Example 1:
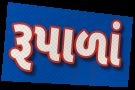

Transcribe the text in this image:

રૂપાળાં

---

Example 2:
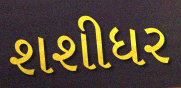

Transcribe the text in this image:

શશીધર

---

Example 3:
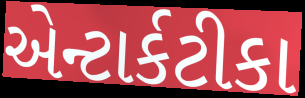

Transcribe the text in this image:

એન્ટાર્કટીકા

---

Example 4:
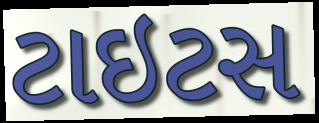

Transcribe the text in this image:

ટાઇટસ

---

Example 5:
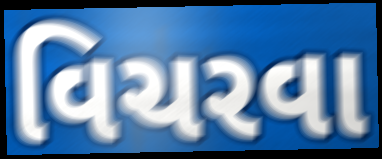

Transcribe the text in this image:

વિચરવા